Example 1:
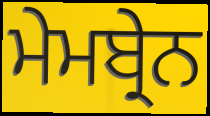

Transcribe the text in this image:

ਮੇਮਬ੍ਰੇਨ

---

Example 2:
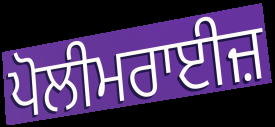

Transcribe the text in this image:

ਪੋਲੀਮਰਾਈਜ਼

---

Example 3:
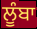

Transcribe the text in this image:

ਲੂੰਬਾ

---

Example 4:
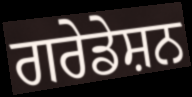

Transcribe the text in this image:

ਗਰੇਡੇਸ਼ਨ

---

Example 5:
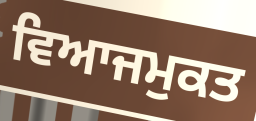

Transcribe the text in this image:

ਵਿਆਜਮੁਕਤ